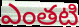
ఎంతటి